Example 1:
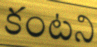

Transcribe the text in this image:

కంటని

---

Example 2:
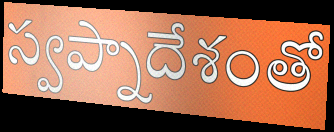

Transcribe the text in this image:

స్వప్నాదేశంతో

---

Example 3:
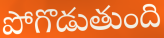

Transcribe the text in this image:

పోగొడుతుంది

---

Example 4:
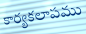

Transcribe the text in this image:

కార్యకలాపము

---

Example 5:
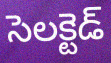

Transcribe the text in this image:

సెలక్టెడ్